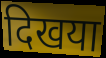
दिखया